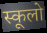
स्कूलो